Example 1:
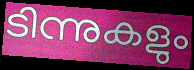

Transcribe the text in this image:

ടിന്നുകളും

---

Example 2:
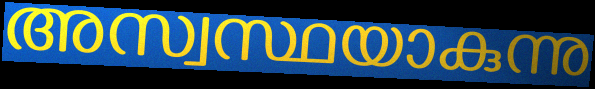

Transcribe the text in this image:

അസ്വസ്ഥയാകുന്നു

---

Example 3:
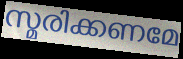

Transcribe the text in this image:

സ്മരിക്കണമേ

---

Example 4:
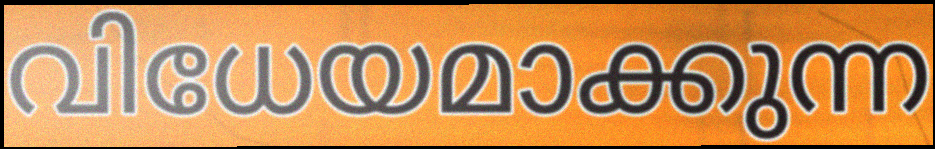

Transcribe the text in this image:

വിധേയമാക്കുന്ന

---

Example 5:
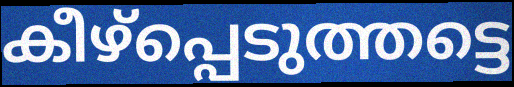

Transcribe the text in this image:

കീഴ്പ്പെടുത്തട്ടെ